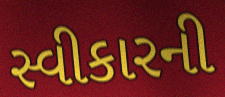
સ્વીકારની